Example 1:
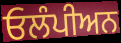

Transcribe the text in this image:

ਓਲੰਪੀਅਨ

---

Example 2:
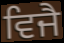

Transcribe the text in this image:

ਵਿਜੈ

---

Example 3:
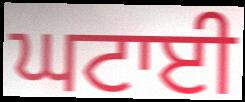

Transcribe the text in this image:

ਘਟਾਈ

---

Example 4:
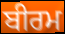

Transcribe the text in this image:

ਬੀਰਮ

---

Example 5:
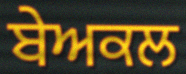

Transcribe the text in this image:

ਬੇਅਕਲ